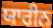
ਯਾਰੀਨ